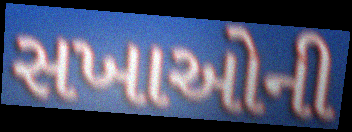
સખાઓની